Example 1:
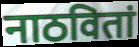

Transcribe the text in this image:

नाठवितां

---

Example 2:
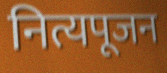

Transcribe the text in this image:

नित्यपूजन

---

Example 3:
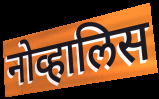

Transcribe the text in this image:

नोव्हालिस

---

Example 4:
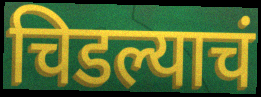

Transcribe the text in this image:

चिडल्याचं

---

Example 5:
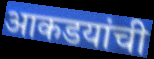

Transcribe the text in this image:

आकडयांची